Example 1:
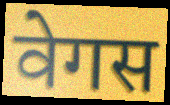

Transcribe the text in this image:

वेगस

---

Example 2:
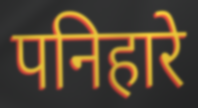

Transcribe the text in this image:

पनिहारे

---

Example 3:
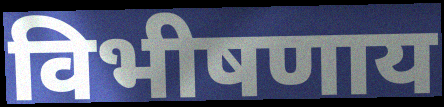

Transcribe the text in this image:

विभीषणाय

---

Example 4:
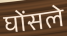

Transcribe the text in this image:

घोंसले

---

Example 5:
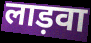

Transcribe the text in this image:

लाड़वा